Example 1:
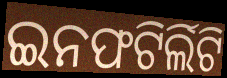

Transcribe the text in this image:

ଇନଫଟିର୍ଲିଟି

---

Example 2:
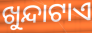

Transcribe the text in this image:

ଖୁନ୍ଦାଟାଏ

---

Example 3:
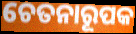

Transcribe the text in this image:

ଚେତନାରୂପକ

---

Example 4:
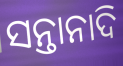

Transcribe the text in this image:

ସନ୍ତାନାଦି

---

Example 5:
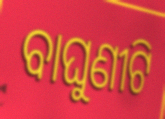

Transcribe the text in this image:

ବାଘୁଣୀଟି